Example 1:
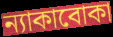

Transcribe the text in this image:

ন্যাকাবোকা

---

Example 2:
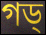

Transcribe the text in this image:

গড্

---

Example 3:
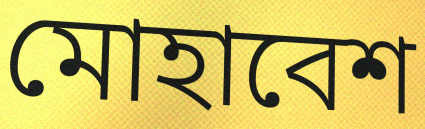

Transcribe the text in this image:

মোহাবেশ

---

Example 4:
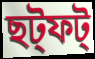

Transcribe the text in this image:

ছট্ফট্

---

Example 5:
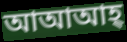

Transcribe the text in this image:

আআআহ্